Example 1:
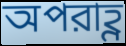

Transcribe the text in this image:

অপরাহ্ণ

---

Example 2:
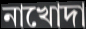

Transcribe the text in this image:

নাখোদা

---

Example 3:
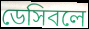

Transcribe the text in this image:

ডেসিবলে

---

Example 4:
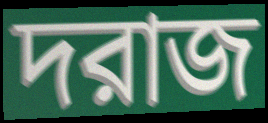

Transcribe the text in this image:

দরাজ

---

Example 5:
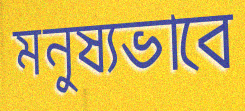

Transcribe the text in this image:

মনুষ্যভাবে